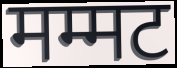
मम्मट